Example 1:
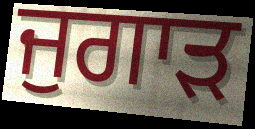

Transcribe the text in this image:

ਜੁਗਾੜ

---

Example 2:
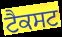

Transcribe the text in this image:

ਟੈਕਸਟ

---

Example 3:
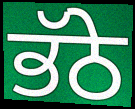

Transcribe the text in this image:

ਭੱਠੇ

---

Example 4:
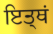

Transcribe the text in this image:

ਇਤ੍ਥਂ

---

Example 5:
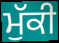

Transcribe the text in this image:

ਮੁੱਕੀ